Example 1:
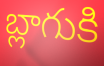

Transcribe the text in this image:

బ్లాగుకి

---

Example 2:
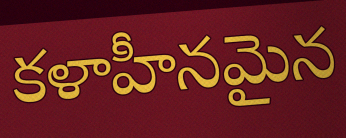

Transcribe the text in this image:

కళాహీనమైన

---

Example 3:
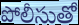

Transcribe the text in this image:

పోలీసుతో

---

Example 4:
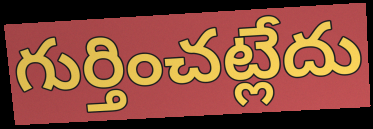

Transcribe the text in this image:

గుర్తించట్లేదు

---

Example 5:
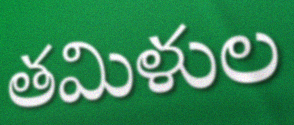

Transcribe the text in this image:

తమిళుల